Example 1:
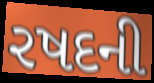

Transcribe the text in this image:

રષદની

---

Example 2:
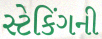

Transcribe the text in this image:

સ્ટેકિંગની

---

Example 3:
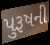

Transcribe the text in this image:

પુરૂષની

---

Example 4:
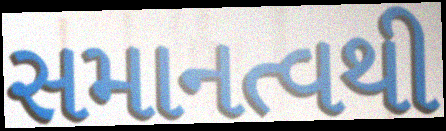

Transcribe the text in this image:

સમાનત્વથી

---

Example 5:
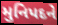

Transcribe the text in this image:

મુનિપદને